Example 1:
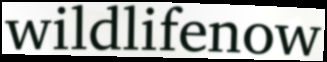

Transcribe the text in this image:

wildlifenow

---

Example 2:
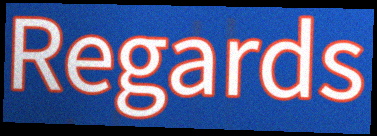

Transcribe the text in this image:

Regards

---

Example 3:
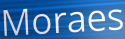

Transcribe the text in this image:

Moraes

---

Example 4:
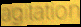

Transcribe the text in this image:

agitation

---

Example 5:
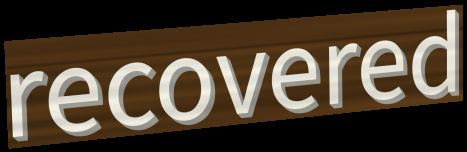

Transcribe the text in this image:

recovered